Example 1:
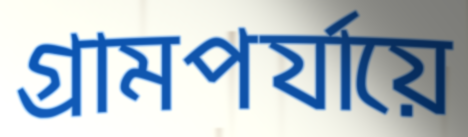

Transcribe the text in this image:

গ্রামপর্যায়ে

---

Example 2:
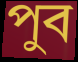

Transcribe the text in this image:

পুব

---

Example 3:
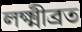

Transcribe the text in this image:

লক্ষ্মীব্রত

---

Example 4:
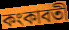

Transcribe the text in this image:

কংকাবতী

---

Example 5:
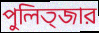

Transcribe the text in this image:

পুলিত্জার